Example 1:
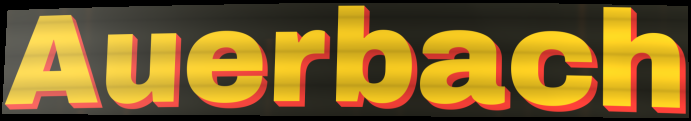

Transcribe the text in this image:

Auerbach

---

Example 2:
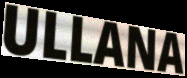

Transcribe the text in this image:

ULLANA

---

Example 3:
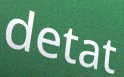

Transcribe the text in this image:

detat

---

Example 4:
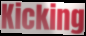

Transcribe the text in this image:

Kicking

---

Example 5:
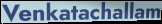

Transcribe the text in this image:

Venkatachallam